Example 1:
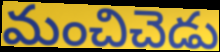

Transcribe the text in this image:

మంచిచెడు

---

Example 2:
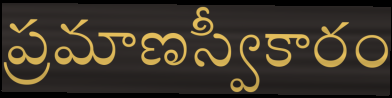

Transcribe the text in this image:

ప్రమాణస్వీకారం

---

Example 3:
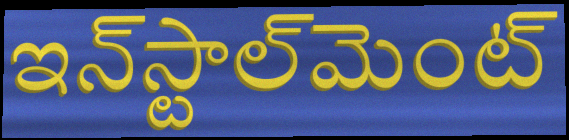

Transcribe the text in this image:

ఇన్‌స్టాల్‌మెంట్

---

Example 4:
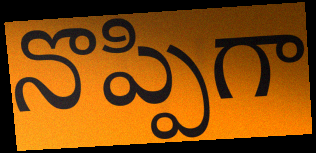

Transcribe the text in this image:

నొప్పిగా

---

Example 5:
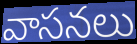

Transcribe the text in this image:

వాసనలు